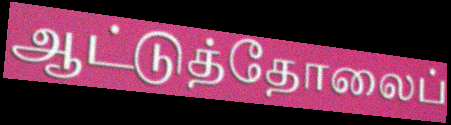
ஆட்டுத்தோலைப்